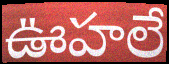
ఊహలే